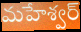
మహేశ్వర్